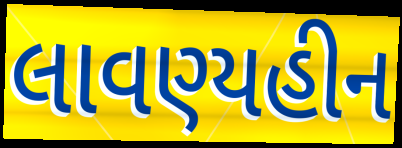
લાવણ્યહીન